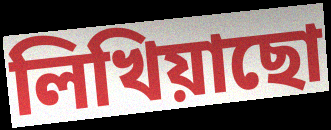
লিখিয়াছো